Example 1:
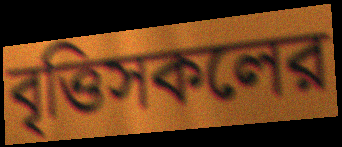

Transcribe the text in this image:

বৃত্তিসকলের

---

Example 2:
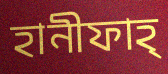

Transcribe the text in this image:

হানীফাহ্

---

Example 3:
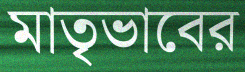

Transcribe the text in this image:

মাতৃভাবের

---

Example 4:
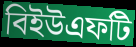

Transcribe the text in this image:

বিইউএফটি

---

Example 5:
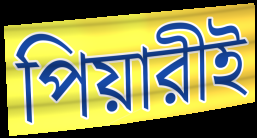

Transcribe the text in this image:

পিয়ারীই